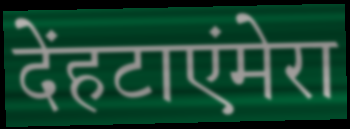
देंहटाएंमेरा